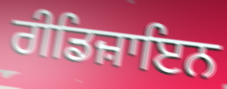
ਰੀਡਿਜ਼ਾਇਨ